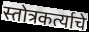
स्तोत्रकर्त्याचे